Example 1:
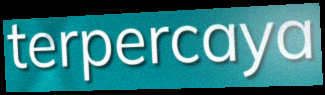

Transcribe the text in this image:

terpercaya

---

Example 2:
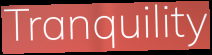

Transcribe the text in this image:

Tranquility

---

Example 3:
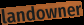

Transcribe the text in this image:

landowner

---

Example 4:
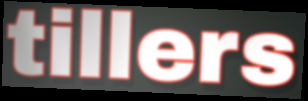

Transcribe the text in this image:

tillers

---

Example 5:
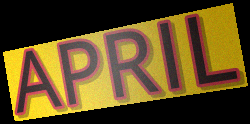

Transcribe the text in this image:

APRIL